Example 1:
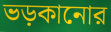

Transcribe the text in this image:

ভড়কানোর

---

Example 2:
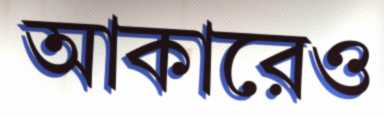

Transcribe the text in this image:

আকারেও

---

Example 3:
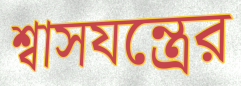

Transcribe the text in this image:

শ্বাসযন্ত্রের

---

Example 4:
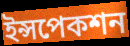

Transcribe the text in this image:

ইন্সপেকশন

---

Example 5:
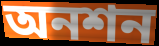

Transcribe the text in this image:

অনশন